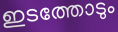
ഇടത്തോടും